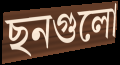
ছনগুলো